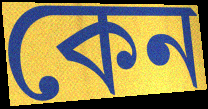
কেন